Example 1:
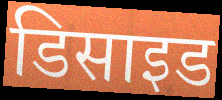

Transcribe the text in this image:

डिसाइड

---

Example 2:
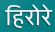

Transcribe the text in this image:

हिरोरे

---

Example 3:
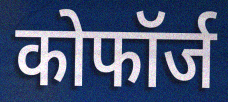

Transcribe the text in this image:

कोफॉर्ज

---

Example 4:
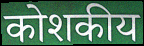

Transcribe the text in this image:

कोशकीय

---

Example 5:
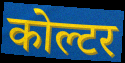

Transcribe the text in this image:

कोल्टर